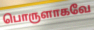
பொருளாகவே